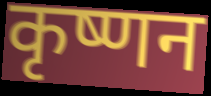
कृष्णन